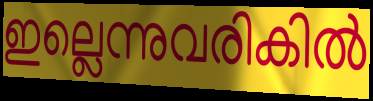
ഇല്ലെന്നുവരികിൽ